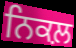
ਨਿਕਲ਼